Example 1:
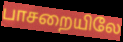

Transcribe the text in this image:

பாசறையிலே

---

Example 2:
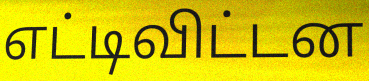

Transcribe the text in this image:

எட்டிவிட்டன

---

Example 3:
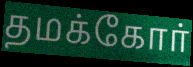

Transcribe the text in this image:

தமக்கோர்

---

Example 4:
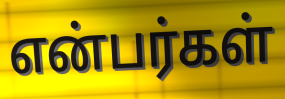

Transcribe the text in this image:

என்பர்கள்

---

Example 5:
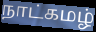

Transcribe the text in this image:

நாட்கமழ்